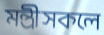
মন্ত্ৰীসকলে